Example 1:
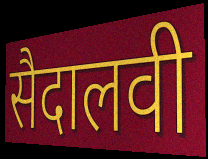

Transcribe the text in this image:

सैदालवी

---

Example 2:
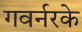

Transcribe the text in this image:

गवर्नरके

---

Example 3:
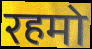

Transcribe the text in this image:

रहमो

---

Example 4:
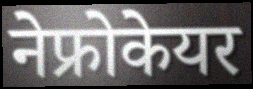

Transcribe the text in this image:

नेफ्रोकेयर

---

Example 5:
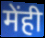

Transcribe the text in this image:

मेंही